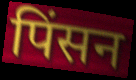
पिंसन